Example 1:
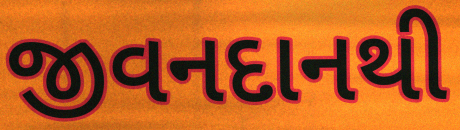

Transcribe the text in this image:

જીવનદાનથી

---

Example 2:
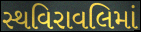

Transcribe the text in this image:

સ્થવિરાવલિમાં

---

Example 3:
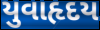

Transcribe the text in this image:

યુવાહૃદય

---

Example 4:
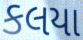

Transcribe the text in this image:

કલયા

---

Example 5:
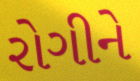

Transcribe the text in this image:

રોગીને